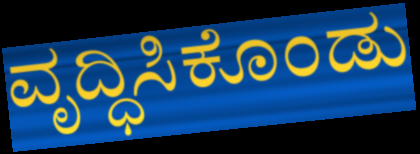
ವೃದ್ಧಿಸಿಕೊಂಡು